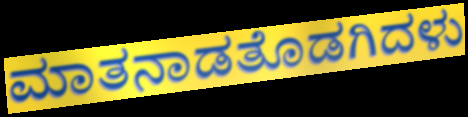
ಮಾತನಾಡತೊಡಗಿದಳು